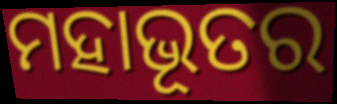
ମହାଭୂତର